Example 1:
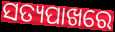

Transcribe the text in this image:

ସତ୍ୟପାଖରେ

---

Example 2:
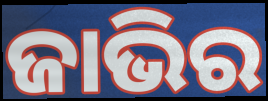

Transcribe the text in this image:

ଜାଭିର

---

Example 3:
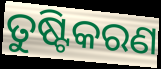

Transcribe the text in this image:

ତୁଷ୍ଟିକରଣ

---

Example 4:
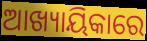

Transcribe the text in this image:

ଆଖ୍ୟାୟିକାରେ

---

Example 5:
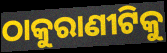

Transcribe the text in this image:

ଠାକୁରାଣୀଟିକୁ